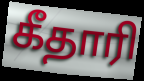
கீதாரி